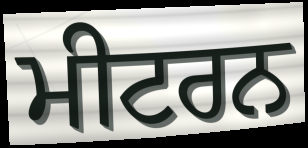
ਮੀਟਰਨ